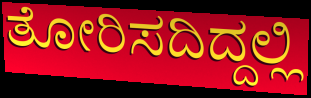
ತೋರಿಸದಿದ್ದಲ್ಲಿ